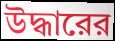
উদ্ধারের